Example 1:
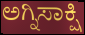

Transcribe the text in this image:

ಅಗ್ನಿಸಾಕ್ಷಿ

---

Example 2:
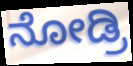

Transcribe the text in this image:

ನೋಡ್ರಿ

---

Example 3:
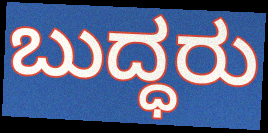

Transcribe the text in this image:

ಬುದ್ಧರು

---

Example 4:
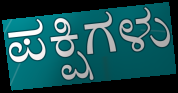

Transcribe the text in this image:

ಪಕ್ಷಿಗಳು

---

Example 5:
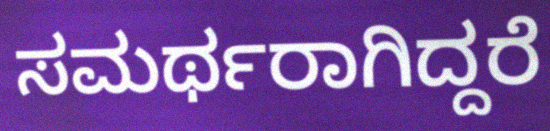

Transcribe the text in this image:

ಸಮರ್ಥರಾಗಿದ್ದರೆ